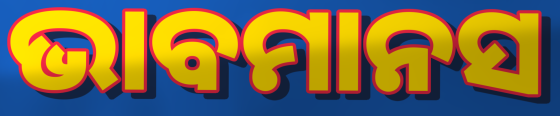
ଭାବମାନସ